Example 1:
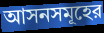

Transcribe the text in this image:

আসনসমূহের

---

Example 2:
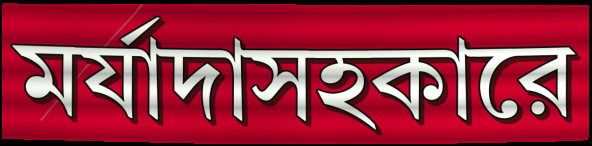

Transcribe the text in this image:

মর্যাদাসহকারে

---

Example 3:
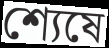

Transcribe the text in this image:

শ্যেষে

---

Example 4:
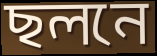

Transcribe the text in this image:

ছলনে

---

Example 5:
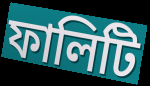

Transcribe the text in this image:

ফালিটি